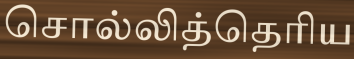
சொல்லித்தெரிய